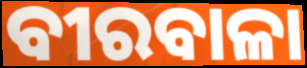
ବୀରବାଳା